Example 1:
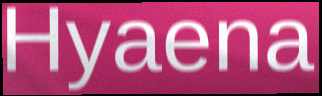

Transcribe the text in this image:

Hyaena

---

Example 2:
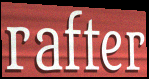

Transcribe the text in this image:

rafter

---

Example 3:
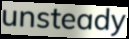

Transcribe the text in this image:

unsteady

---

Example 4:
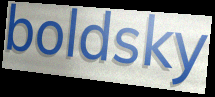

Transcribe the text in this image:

boldsky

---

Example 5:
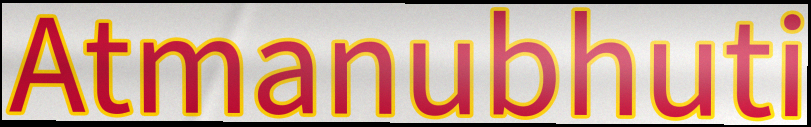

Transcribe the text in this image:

Atmanubhuti